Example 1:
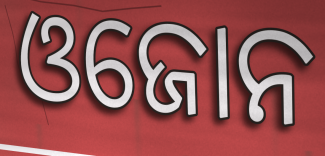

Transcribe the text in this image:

ଓଜୋନ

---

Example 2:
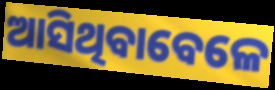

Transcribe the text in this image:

ଆସିଥିବାବେଳେ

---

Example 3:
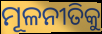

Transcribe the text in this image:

ମୂଳନୀତିକୁ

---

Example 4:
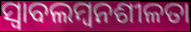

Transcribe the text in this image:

ସ୍ୱାବଲମ୍ୱନଶୀଳତା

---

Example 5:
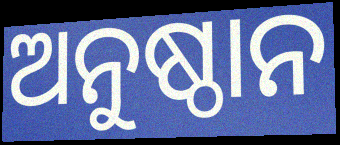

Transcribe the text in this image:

ଅନୁଷ୍ଠାନ